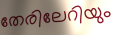
തേരിലേറിയും